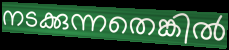
നടക്കുന്നതെങ്കിൽ